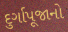
દુર્ગાપૂજાનો